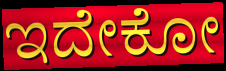
ಇದೇಕೋ